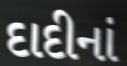
દાદીનાં